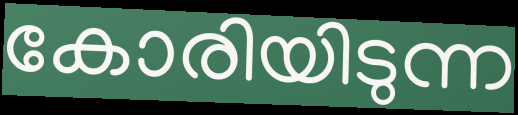
കോരിയിടുന്ന